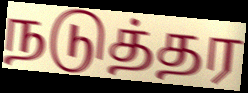
நடுத்தர